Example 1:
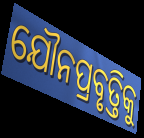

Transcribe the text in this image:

ଯୌନପ୍ରବୃତ୍ତିକୁ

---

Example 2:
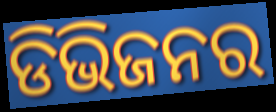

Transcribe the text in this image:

ଡିଭିଜନର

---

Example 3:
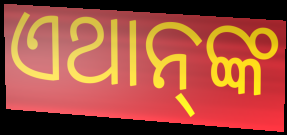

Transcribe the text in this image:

ଏଥାନ୍‍ଙ୍କ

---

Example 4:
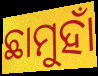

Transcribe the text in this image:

ଛାମୁହାଁ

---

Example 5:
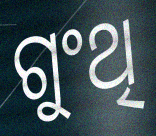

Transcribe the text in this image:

ଗୁଂଥି